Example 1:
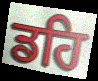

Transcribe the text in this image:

ਡਹਿ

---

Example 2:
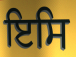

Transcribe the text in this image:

ਇਸਿ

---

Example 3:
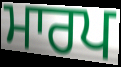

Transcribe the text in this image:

ਮਾਰਪ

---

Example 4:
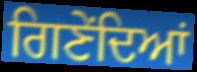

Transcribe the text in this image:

ਗਿਣੇਂਦਿਆਂ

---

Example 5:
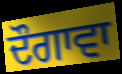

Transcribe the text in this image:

ਦੌਗਾਵਾ